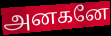
அனகனே